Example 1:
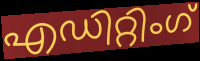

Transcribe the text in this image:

എഡിറ്റിംഗ്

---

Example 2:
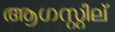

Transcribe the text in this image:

ആഗസ്റ്റില്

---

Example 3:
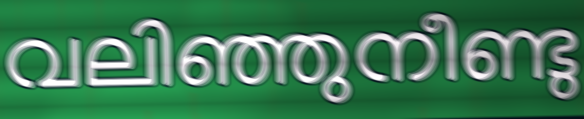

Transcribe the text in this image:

വലിഞ്ഞുനീണ്ടു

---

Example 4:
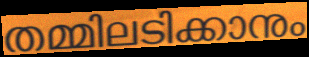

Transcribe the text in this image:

തമ്മിലടിക്കാനും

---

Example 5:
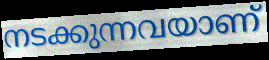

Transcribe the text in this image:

നടക്കുന്നവയാണ്